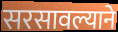
सरसावल्याने